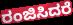
ರಂಜಿಸಿದರೆ